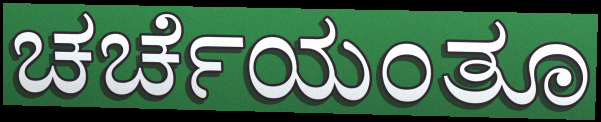
ಚರ್ಚೆಯಂತೂ